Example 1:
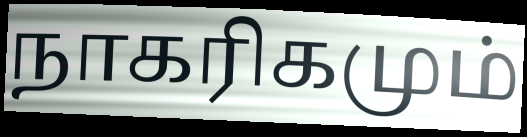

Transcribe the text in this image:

நாகரிகமும்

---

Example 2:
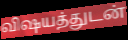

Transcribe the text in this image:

விஷயத்துடன்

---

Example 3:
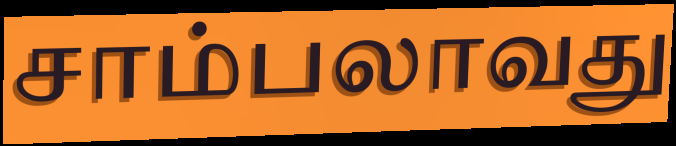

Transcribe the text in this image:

சாம்பலாவது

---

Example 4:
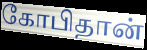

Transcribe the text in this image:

கோபிதான்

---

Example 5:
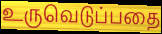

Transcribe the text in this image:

உருவெடுப்பதை